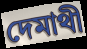
দেমাথী